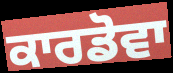
ਕਾਰਡੋਵਾ